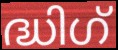
ദ്ധിഗ്